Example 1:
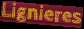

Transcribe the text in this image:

Lignieres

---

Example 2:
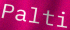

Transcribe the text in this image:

Palti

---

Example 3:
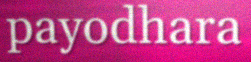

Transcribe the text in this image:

payodhara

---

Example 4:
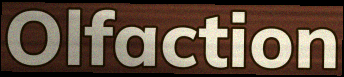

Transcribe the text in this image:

Olfaction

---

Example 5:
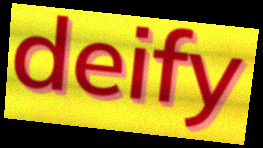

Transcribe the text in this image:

deify